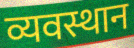
व्यवस्थान